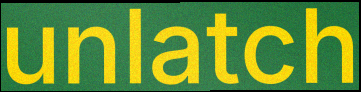
unlatch